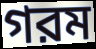
গরম